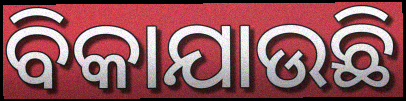
ବିକାଯାଉଛି